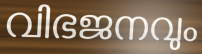
വിഭജനവും